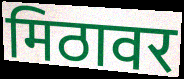
मिठावर